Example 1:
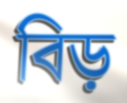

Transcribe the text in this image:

বিড়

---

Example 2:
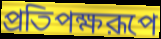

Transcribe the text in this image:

প্রতিপক্ষরূপে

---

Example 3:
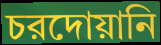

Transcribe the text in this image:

চরদোয়ানি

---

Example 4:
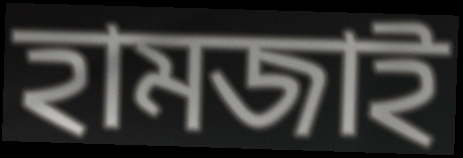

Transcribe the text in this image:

হামজাই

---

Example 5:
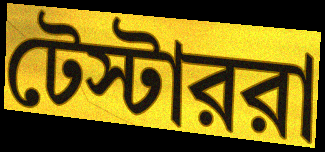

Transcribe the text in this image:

টেস্টাররা